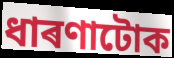
ধাৰণাটোক